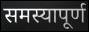
समस्यापूर्ण